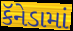
કૅનેડામાં